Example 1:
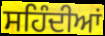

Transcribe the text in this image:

ਸਹਿੰਦੀਆਂ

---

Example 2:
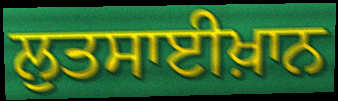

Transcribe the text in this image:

ਲੁਤਸਾਈਖ਼ਾਨ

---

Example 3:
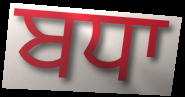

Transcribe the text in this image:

ਬਧਾ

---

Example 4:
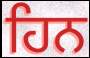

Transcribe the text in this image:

ਹਿਨ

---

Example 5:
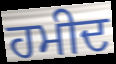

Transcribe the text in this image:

ਹਮੀਦ